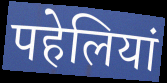
पहेलियां